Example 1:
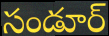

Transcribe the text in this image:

సండూర్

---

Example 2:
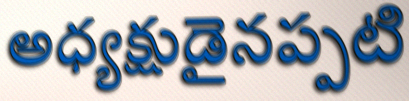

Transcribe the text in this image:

అధ్యక్షుడైనప్పటి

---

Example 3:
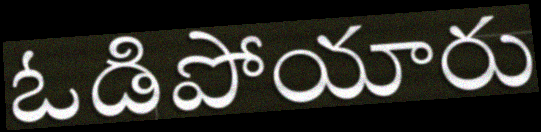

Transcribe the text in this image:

ఓడిపోయారు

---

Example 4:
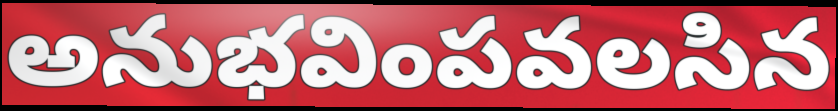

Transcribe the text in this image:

అనుభవింపవలసిన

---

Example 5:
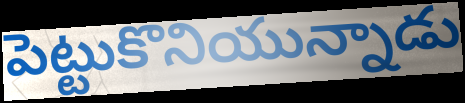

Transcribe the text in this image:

పెట్టుకొనియున్నాడు